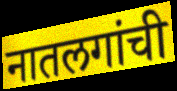
नातलगांची